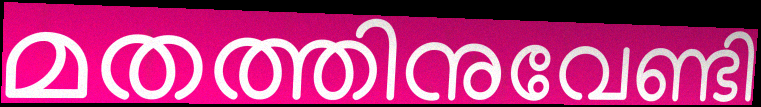
മതത്തിനുവേണ്ടി